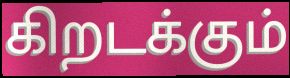
கிறடக்கும்